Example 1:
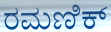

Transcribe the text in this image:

ರಮಣಿಕ್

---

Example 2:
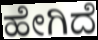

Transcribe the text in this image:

ಹೇಗಿದೆ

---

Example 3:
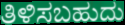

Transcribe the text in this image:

ತಿಳಿಸಬಹುದು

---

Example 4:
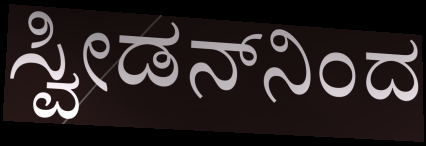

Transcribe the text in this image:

ಸ್ವೀಡನ್‌ನಿಂದ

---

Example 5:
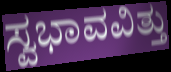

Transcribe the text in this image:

ಸ್ವಭಾವವಿತ್ತು